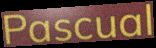
Pascual